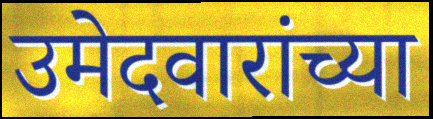
उमेदवारांच्या